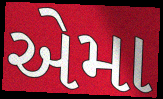
એમા